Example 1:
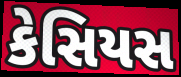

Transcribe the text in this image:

કેસિયસ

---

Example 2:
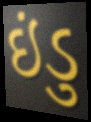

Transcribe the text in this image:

ઇંડુ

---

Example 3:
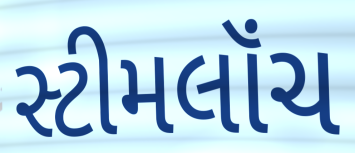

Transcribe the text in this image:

સ્ટીમલૉંચ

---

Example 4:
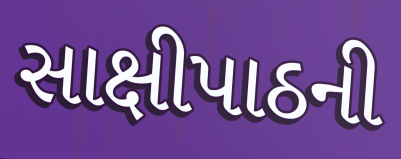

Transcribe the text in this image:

સાક્ષીપાઠની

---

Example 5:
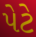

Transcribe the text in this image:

પેટે